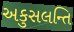
અકુસલન્તિ